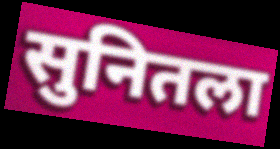
सुनितला